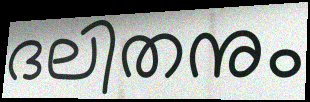
ദലിതനും